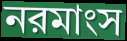
নরমাংস